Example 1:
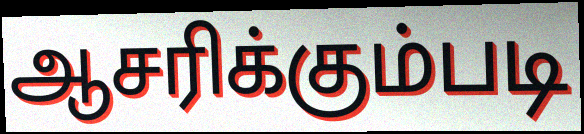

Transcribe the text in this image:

ஆசரிக்கும்படி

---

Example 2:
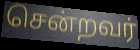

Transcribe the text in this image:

சென்றவர்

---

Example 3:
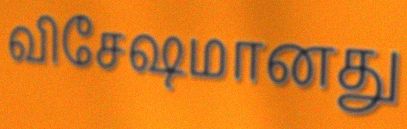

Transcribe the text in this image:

விசேஷமானது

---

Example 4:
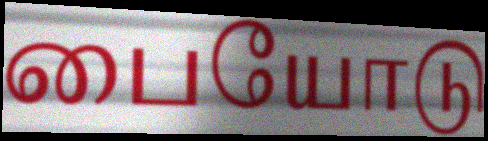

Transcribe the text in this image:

பையோடு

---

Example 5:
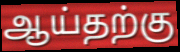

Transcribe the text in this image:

ஆய்தற்கு